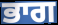
ਭਾਗ